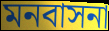
মনবাসনা